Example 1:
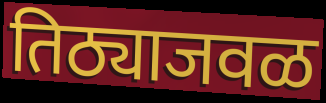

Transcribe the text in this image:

तिठ्याजवळ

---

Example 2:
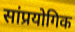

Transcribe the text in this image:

सांप्रयोगिक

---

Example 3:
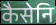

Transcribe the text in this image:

कैसेनि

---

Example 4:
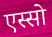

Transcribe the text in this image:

एस्सो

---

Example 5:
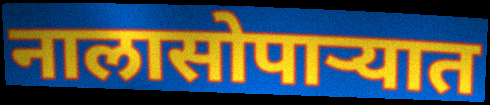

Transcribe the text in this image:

नालासोपाऱ्यात